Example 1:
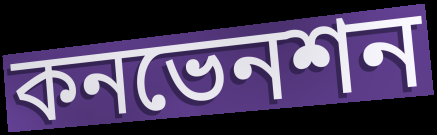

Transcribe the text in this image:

কনভেনশন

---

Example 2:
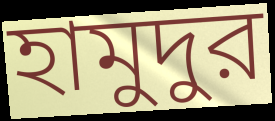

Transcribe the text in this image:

হামুদুর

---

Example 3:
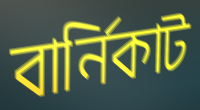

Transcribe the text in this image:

বার্নিকাট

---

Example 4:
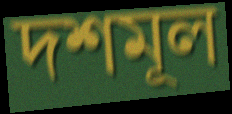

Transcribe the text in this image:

দশমূল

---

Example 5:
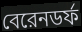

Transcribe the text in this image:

বেরেনডর্ফ